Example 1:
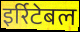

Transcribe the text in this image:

इर्रिटेबल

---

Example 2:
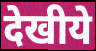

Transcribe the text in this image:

देखीये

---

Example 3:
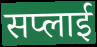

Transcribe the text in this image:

सप्लाई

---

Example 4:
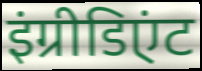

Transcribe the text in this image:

इंग्रीडिएंट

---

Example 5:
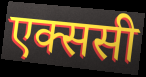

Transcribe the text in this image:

एक्ससी